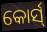
କୋର୍ସ୍